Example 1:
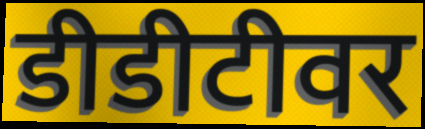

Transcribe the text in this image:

डीडीटीवर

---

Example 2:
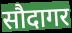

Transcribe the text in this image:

सौदागर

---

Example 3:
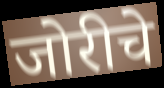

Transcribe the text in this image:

जोरीचे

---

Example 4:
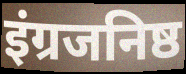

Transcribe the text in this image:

इंग्रजनिष्ठ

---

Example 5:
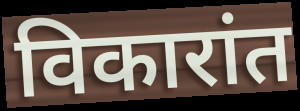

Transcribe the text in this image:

विकारांत